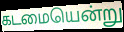
கடமையென்று